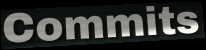
Commits